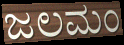
ಜಲಮಂ